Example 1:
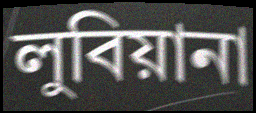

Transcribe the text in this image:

লুবিয়ানা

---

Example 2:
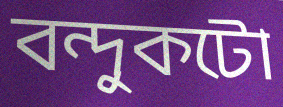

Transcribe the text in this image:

বন্দুকটো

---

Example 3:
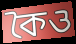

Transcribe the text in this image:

কৈও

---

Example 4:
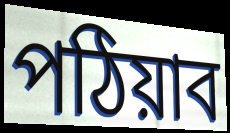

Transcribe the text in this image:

পঠিয়াব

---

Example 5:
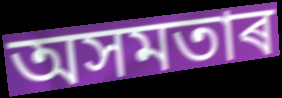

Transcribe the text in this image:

অসমতাৰ